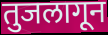
तुजलागून